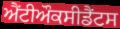
ਐਂਟੀਔਕਸੀਡੈਂਟਸ